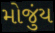
મોજુંય